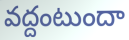
వద్దంటుందా